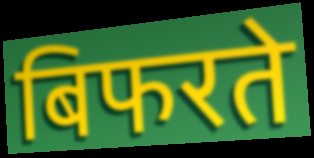
बिफरते